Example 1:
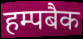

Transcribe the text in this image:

हम्पबैक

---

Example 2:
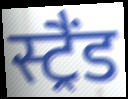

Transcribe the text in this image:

स्ट्रैंड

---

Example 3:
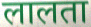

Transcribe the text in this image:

लालता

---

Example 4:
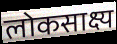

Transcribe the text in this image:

लोकसाक्ष्य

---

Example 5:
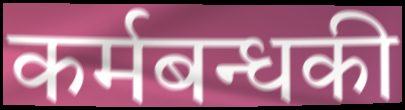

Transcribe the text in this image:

कर्मबन्धकी